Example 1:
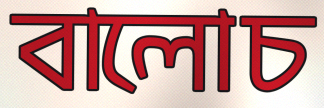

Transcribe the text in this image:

বালোচ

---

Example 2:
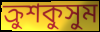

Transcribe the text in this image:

ক্রুশকুসুম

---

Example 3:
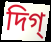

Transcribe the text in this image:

দিগ্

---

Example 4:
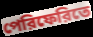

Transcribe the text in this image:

পেরিফেরিতে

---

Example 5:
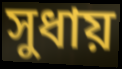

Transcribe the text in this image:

সুধায়